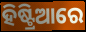
ହିଷ୍ଟ୍ରିଆରେ